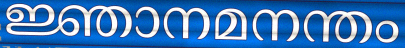
ജ്ഞാനമനന്തം